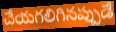
చేయగలిగినప్పుడే